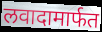
लवादामार्फत